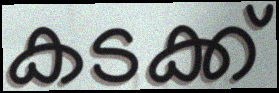
കടക്ക്